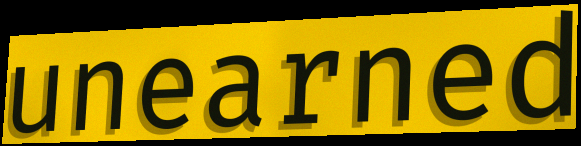
unearned